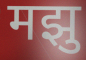
मझु